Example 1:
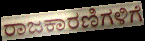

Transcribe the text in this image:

ರಾಜಕಾರಣಿಗಳಿಗೆ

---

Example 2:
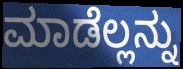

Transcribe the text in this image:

ಮಾಡೆಲ್ಲನ್ನು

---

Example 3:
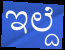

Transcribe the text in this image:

ಇಲ್ದೆ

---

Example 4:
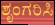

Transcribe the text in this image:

ಶೃಂಗರಿಸಿ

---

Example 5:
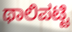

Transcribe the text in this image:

ಥಾಲಿಪಟ್ಟಿ